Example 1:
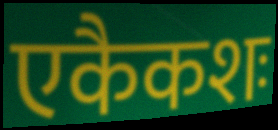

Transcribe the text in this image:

एकैकशः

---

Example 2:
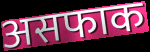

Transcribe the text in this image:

असफाक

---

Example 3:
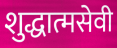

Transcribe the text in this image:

शुद्धात्मसेवी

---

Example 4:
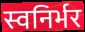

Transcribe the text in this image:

स्वनिर्भर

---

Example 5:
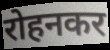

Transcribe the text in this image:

रोहनकर